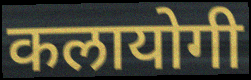
कलायोगी